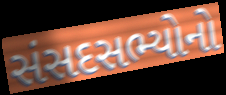
સંસદસભ્યોનો